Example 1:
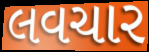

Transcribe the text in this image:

લવચાર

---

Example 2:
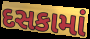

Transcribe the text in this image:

દસકામાં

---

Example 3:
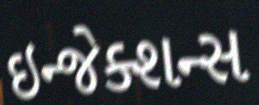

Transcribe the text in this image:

ઇન્જેક્શન્સ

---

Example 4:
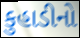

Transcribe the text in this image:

કુહાડીનો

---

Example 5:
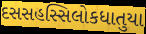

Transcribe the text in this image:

દસસહસ્સિલોકધાતુયા